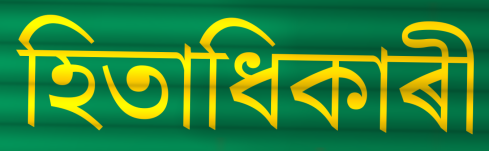
হিতাধিকাৰী